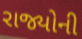
રાજ્યોની